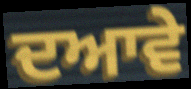
ਦਆਵੇ